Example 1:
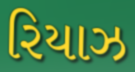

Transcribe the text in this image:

રિયાઝ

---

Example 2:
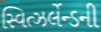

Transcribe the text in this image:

સ્વિત્ઝર્લેન્ડની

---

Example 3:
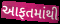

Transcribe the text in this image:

આફતમાંથી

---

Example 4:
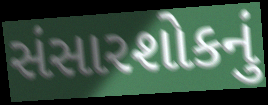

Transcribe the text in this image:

સંસારશોકનું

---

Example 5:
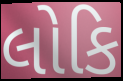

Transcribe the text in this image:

લોકિ